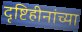
दृष्टिहीनांच्या